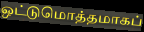
ஒட்டுமொத்தமாகப்